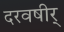
दरवषीर्